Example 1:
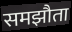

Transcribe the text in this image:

समझौता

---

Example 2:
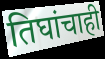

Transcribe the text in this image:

तिघांचाही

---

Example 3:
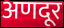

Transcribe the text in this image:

अणदूर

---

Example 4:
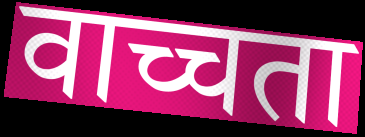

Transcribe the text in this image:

वाच्चता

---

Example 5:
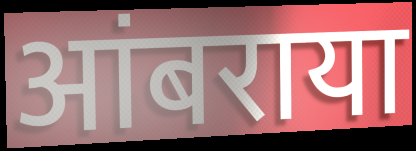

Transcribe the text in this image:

आंबराया